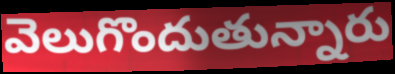
వెలుగొందుతున్నారు